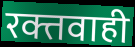
रक्तवाही